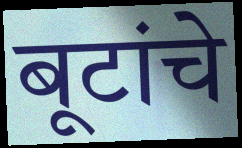
बूटांचे